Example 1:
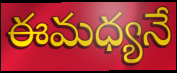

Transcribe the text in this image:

ఈమధ్యనే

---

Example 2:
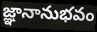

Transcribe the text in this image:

జ్ఞానానుభవం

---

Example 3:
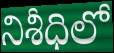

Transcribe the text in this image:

నిశీధిలో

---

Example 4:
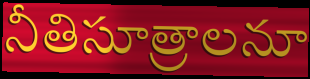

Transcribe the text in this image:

నీతిసూత్రాలనూ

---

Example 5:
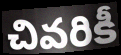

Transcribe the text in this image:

చివరికీ